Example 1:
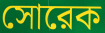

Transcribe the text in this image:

সোরেক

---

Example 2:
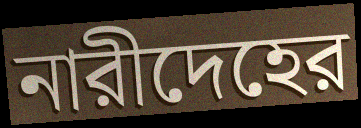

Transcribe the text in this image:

নারীদেহের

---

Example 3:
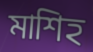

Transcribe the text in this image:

মাশিহ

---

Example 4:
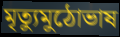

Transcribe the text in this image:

মৃত্যুমুঠোভাষ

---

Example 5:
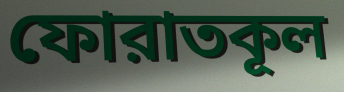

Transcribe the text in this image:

ফোরাতকূল